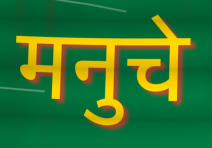
मनुचे